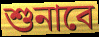
শুনাবে